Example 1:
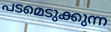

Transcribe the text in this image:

പടമെടുക്കുന്ന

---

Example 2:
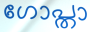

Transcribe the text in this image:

ഗോപ്താ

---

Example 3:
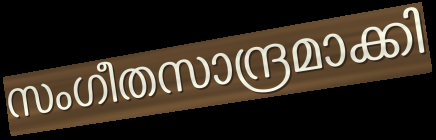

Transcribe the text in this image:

സംഗീതസാന്ദ്രമാക്കി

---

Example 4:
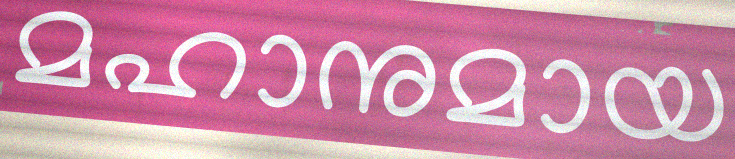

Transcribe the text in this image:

മഹാനുമായ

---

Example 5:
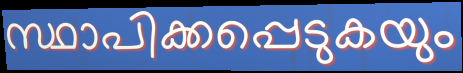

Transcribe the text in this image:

സ്ഥാപിക്കപ്പെടുകയും